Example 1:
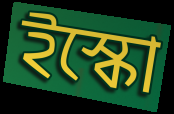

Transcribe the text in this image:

ইস্কো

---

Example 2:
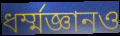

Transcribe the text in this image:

ধর্ম্মজ্ঞানও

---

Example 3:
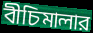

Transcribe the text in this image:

বীচিমালার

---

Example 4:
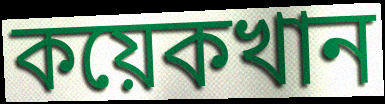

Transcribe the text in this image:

কয়েকখান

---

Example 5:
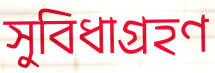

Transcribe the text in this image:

সুবিধাগ্রহণ